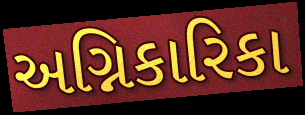
અગ્નિકારિકા